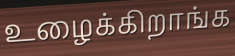
உழைக்கிறாங்க